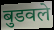
बुडवले